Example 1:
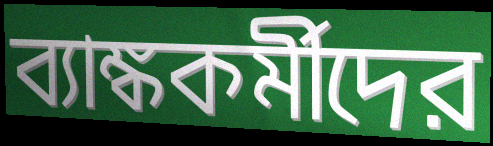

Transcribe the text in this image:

ব্যাঙ্ককর্মীদের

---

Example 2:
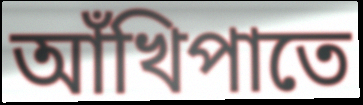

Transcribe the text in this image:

আঁখিপাতে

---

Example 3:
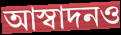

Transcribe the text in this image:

আস্বাদনও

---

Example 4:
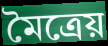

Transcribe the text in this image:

মৈত্রেয়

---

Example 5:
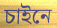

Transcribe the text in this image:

চাইনে